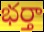
భర్తా